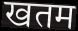
खतम